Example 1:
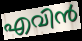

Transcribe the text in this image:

എവിൻ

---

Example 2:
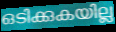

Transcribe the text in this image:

ഒടിക്കുകയില്ല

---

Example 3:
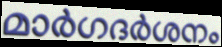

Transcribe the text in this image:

മാർഗദർശനം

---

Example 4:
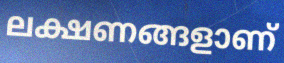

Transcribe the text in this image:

ലക്ഷണങ്ങളാണ്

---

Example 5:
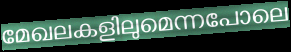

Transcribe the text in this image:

മേഖലകളിലുമെന്നപോലെ